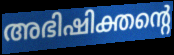
അഭിഷിക്തന്റെ